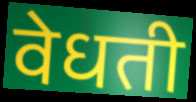
वेधती